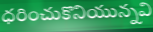
ధరించుకొనియున్నవి